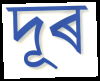
দূৰ